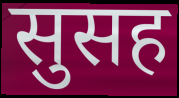
सुसह